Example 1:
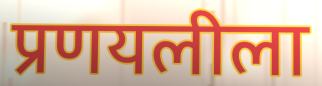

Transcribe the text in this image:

प्रणयलीला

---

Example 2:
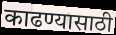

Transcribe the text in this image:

काढण्यासाठी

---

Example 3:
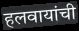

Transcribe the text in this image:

हलवायांची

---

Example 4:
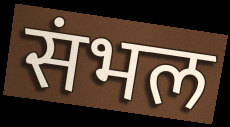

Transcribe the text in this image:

संभल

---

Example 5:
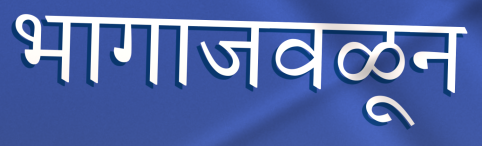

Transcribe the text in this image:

भागाजवळून